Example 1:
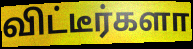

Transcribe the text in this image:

விட்டீர்களா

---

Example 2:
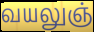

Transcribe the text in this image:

வயலுஞ்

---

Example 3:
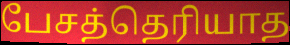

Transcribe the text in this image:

பேசத்தெரியாத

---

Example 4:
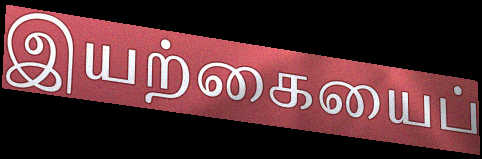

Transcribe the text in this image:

இயற்கையைப்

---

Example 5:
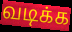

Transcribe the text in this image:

வடிக்க